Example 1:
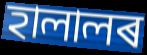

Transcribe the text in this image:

হালালৰ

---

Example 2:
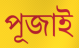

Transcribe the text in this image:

পূজাই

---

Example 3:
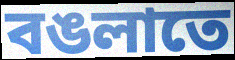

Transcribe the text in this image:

বঙলাতে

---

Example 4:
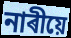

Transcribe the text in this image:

নাৰীয়ে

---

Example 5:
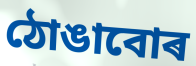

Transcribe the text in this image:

ঠোঙাবোৰ